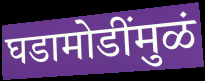
घडामोडींमुळं